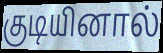
குடியினால்